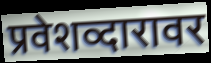
प्रवेशव्दारावर